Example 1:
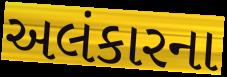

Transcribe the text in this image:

અલંકારના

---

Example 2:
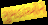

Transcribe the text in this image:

ગુમડાંઓને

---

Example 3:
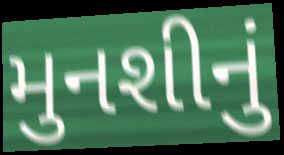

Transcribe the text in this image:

મુનશીનું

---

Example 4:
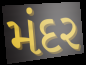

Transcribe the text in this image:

મંદર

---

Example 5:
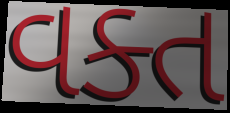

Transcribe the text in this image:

વક્ત